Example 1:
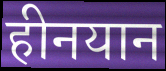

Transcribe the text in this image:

हीनयान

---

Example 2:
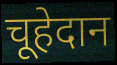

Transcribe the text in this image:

चूहेदान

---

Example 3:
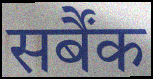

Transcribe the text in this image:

सर्बैंक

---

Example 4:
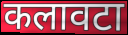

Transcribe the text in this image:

कलावटा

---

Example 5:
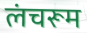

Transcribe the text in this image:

लंचरूम